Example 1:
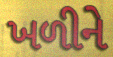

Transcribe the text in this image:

ખળીને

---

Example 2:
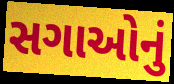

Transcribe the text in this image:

સગાઓનું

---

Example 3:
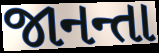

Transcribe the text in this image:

જાનન્તા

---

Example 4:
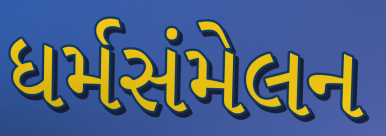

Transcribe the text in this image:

ધર્મસંમેલન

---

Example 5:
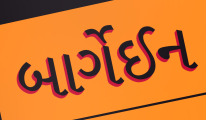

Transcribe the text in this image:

બાર્ગેઈન